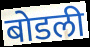
बोडली